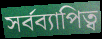
সর্বব্যাপিত্ব